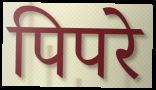
पिपरे